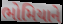
ભોમિયાને